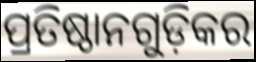
ପ୍ରତିଷ୍ଠାନଗୁଡ଼ିକର